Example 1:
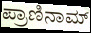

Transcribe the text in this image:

ಪ್ರಾಣಿನಾಮ್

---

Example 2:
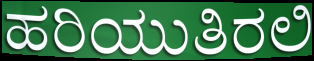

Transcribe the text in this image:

ಹರಿಯುತಿರಲಿ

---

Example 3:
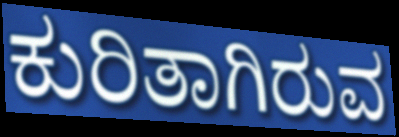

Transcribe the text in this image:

ಕುರಿತಾಗಿರುವ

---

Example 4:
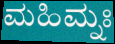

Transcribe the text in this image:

ಮಹಿಮ್ನಃ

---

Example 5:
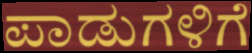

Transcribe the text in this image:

ಪಾಡುಗಳಿಗೆ